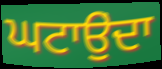
ਘਟਾਉੁਂਦਾ